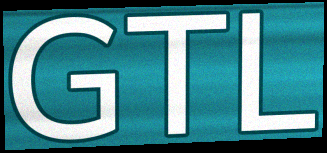
GTL